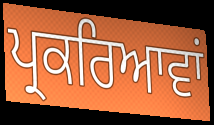
ਪ੍ਰਕਰਿਆਵਾਂ